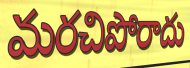
మరచిపోరాదు